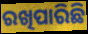
ରଖିପାରିଛି